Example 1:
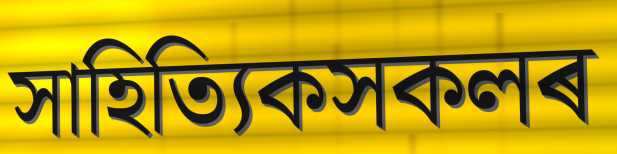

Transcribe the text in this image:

সাহিত্যিকসকলৰ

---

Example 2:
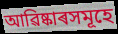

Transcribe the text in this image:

আৱিষ্কাৰসমূহে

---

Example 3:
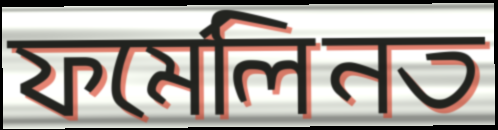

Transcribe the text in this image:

ফৰ্মেলিনত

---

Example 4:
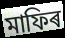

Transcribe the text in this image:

মাফিৰ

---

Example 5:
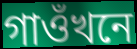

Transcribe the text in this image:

গাওঁখনে